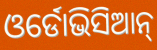
ଓର୍ଡୋଭିସିଆନ୍